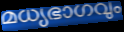
മധ്യഭാഗവും